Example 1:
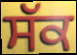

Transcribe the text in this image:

ਸੱਕ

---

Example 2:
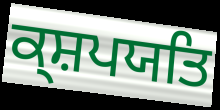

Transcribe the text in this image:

ਕ੍ਸ਼ਪਯਤਿ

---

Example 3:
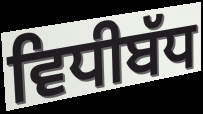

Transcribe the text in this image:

ਵਿਧੀਬੱਧ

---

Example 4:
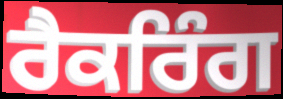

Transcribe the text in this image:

ਰੈਕਰਿੰਗ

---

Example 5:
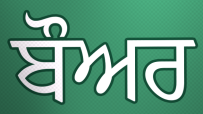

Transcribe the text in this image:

ਬੌਅਰ